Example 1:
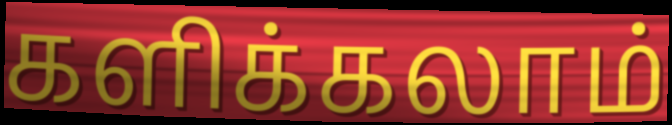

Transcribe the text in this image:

களிக்கலாம்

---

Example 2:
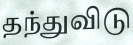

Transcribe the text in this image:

தந்துவிடு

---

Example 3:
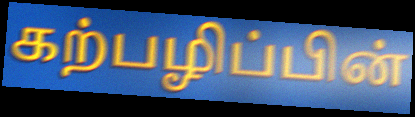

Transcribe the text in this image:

கற்பழிப்பின்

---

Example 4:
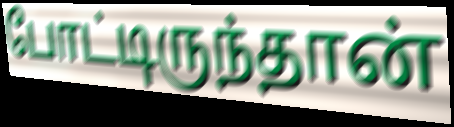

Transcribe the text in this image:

போட்டிருந்தான்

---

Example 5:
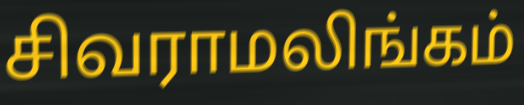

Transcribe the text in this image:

சிவராமலிங்கம்